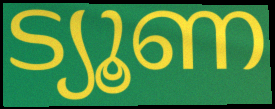
ട്യൂണ